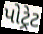
પોટ્રેટ